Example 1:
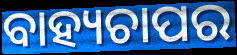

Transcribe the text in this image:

ବାହ୍ୟଚାପର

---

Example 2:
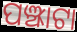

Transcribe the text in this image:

ପଞ୍ଝାଟା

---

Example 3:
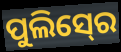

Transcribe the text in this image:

ପୁଲିସ୍‍ରେ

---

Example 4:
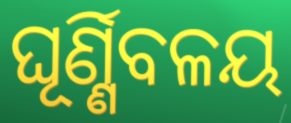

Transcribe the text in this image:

ଘୂର୍ଣ୍ଣିବଳୟ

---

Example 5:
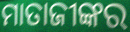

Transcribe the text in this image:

ମାତାଜୀଙ୍କର